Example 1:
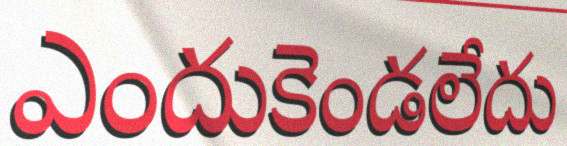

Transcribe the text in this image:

ఎందుకెండలేదు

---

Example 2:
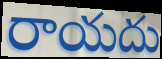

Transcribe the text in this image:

రాయదు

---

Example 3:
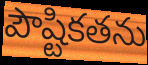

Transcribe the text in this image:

పౌష్టికతను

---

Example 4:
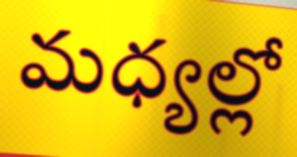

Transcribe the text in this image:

మధ్యల్లో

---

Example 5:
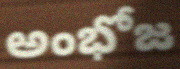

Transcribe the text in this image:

అంభోజ